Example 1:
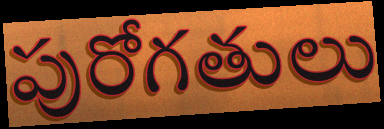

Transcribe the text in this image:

పురోగతులు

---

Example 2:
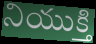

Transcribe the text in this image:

నియుక్తి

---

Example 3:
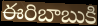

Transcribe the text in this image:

ఈరిబాబుకి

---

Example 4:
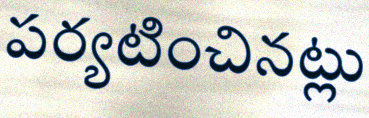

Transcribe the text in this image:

పర్యటించినట్లు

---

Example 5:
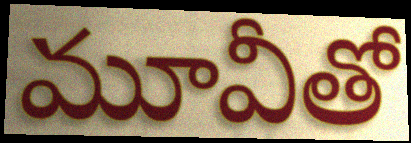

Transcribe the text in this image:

మూవీతో